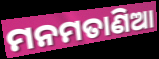
ମନମତାଣିଆ